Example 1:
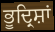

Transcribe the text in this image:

ਭੂਦ੍ਰਿਸ਼ਾਂ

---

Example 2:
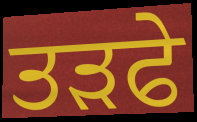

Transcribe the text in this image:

ਤੜਫੇ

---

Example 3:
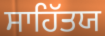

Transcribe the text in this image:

ਸਾਹਿੱਤਯ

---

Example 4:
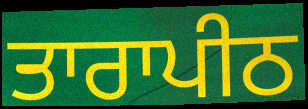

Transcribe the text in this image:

ਤਾਰਾਪੀਠ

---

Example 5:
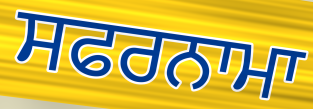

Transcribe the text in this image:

ਸਫਰਨਾਮਾ